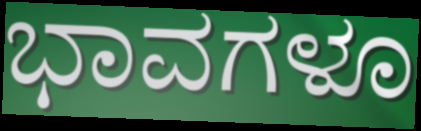
ಭಾವಗಳೂ